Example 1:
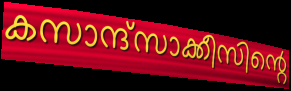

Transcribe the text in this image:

കസാന്ദ്സാക്കീസിന്റെ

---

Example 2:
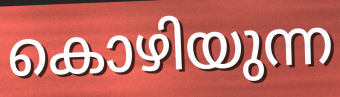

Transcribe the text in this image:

കൊഴിയുന്ന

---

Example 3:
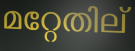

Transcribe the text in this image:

മറ്റേതില്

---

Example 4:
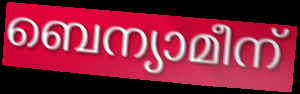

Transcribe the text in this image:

ബെന്യാമീന്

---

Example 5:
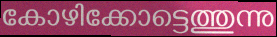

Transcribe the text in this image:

കോഴിക്കോട്ടെത്തുന്നു